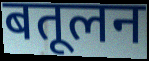
बतूलन